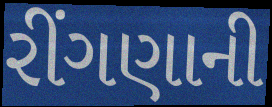
રીંગણાની